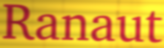
Ranaut